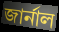
জার্নাল